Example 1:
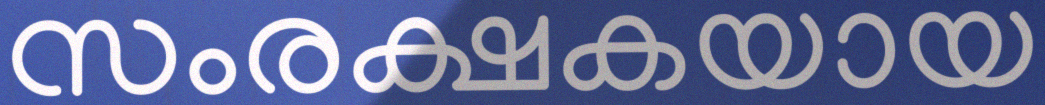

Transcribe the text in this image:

സംരക്ഷകയായ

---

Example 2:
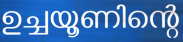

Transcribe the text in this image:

ഉച്ചയൂണിന്റെ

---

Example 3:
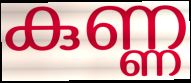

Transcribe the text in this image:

കുണ്ണ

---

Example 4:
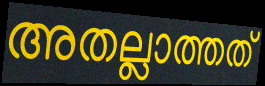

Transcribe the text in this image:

അതല്ലാത്തത്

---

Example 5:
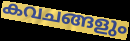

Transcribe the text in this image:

കവചങ്ങളും